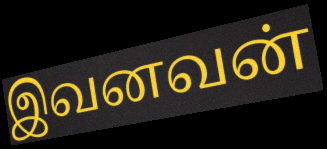
இவனவன்